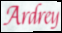
Ardrey